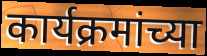
कार्यक्रमांच्या